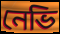
নেভি